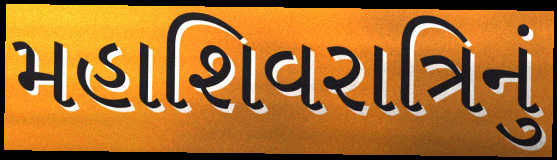
મહાશિવરાત્રિનું